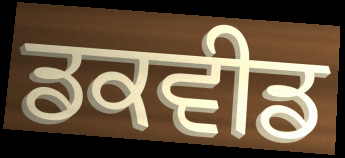
ਡਕਵੀਡ